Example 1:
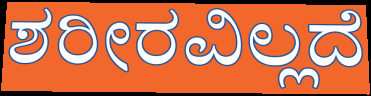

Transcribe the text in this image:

ಶರೀರವಿಲ್ಲದೆ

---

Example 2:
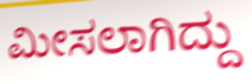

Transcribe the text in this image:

ಮೀಸಲಾಗಿದ್ದು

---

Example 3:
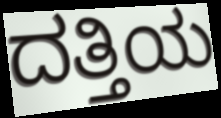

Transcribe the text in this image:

ದತ್ತಿಯ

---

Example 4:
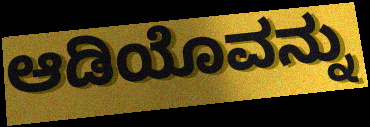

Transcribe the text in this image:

ಆಡಿಯೊವನ್ನು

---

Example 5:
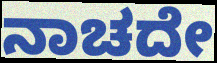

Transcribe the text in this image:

ನಾಚದೇ